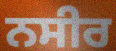
ਨਸੀਰ